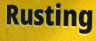
Rusting